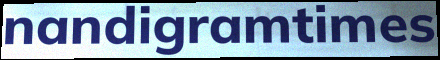
nandigramtimes